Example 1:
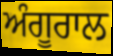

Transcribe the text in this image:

ਅੰਗੂਰਾਲ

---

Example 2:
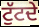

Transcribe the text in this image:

ਟੁੱਟਦੇ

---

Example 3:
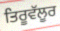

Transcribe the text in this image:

ਤਿਰੂਵੱਲੂਰ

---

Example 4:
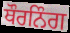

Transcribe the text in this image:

ਥੌਰਨਿੰਗ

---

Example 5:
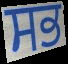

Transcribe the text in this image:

ਸਭ